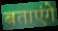
बताएंगे